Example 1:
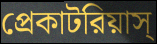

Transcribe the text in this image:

প্রেকাটরিয়াস্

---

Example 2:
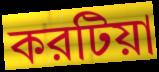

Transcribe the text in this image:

করটিয়া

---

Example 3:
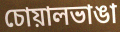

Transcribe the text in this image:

চোয়ালভাঙা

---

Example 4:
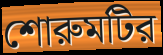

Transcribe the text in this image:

শোরুমটির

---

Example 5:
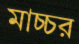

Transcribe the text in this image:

মাচ্চর